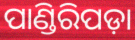
ପାଣ୍ଡିରିପଡ଼ା